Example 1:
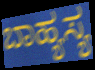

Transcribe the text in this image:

ಬಾಹ್ಯಸ್ಯ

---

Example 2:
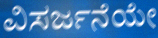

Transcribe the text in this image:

ವಿಸರ್ಜನೆಯೇ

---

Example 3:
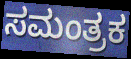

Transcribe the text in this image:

ಸಮಂತ್ರಕ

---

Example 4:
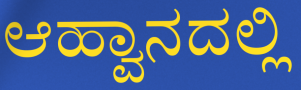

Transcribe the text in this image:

ಆಹ್ವಾನದಲ್ಲಿ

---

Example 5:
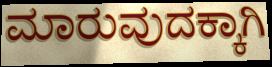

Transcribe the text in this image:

ಮಾರುವುದಕ್ಕಾಗಿ